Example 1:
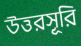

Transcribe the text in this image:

উত্তরসূরি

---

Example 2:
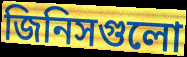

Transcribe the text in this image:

জিনিসগুলো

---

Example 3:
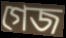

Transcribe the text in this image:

গেজ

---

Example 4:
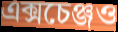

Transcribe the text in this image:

এক্সচেঞ্জও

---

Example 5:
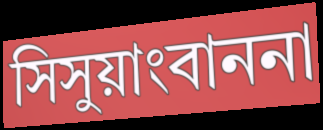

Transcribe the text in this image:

সিসুয়াংবাননা